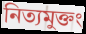
নিত্যমুক্তং